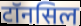
टॉनसिल